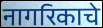
नागरिकाचे